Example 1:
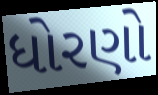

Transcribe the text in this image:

ધોરણો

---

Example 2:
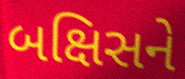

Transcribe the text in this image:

બક્ષિસને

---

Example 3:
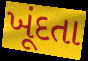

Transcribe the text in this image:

ખૂંદતા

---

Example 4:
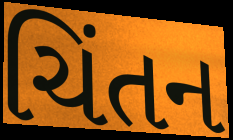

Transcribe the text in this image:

ચિંતન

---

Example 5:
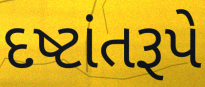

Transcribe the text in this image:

દષ્ટાંતરૂપે